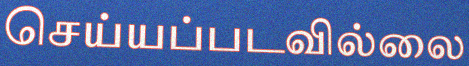
செய்யப்படவில்லை